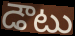
డౌటు